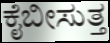
ಕೈಬೀಸುತ್ತ